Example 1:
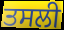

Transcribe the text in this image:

ਤਸਲੀ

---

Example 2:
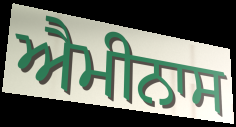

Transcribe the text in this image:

ਐਮੀਨਾਸ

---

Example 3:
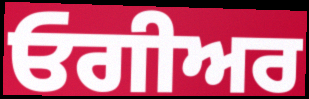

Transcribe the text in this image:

ਓਗੀਅਰ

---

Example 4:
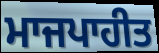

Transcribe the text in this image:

ਮਾਜਪਾਹੀਤ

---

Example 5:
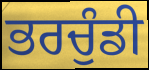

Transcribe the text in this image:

ਭਰਚੁੰਡੀ